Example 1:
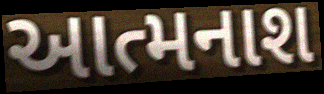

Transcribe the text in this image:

આત્મનાશ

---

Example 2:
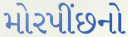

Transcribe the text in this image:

મોરપીંછનો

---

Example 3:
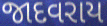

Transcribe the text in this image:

જાદવરાય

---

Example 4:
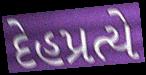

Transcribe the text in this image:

દેહપ્રત્યે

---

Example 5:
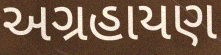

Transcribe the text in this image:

અગ્રહાયણ